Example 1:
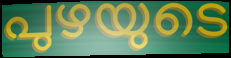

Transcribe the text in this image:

പുഴയുടെ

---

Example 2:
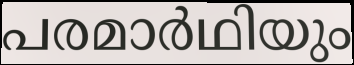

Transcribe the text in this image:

പരമാർഥിയും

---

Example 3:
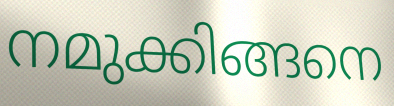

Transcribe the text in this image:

നമുക്കിങ്ങനെ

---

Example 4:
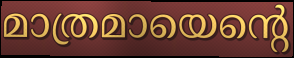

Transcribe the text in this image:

മാത്രമായെന്റെ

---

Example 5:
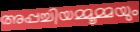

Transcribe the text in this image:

അപ്പച്ചിയമ്മൂമ്മയും